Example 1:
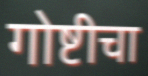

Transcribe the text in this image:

गोष्टीचा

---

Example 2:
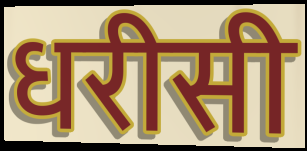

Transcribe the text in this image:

धरीसी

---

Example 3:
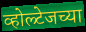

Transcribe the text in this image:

व्होल्टेजच्या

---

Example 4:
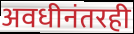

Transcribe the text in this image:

अवधीनंतरही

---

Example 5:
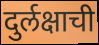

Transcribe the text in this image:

दुर्लक्षाची